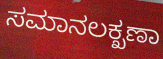
ಸಮಾನಲಕ್ಖಣಾ